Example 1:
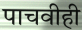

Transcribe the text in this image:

पाचवीही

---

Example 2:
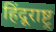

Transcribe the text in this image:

हिंदूराष्ट्र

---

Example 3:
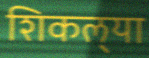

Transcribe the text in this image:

शिकल्या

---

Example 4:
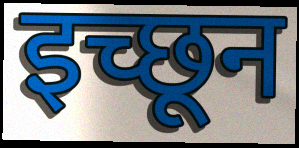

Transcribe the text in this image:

इच्छून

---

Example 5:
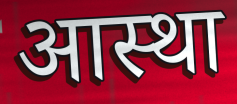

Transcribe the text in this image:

आस्था